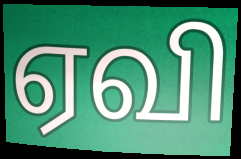
ஏவி